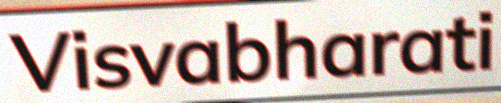
Visvabharati